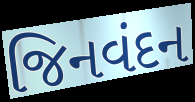
જિનવંદન